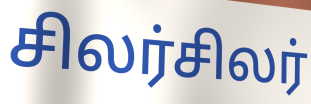
சிலர்சிலர்